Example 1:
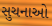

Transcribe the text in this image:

સુચનાઓ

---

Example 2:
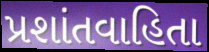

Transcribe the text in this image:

પ્રશાંતવાહિતા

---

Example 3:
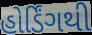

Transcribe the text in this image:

હોર્ડિંગથી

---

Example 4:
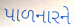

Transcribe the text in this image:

પાળનારને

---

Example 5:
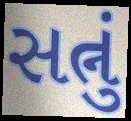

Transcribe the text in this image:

સત્નું